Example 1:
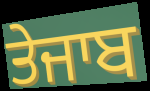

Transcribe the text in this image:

ਤੇਜਾਬ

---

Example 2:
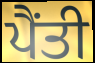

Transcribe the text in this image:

ਪੈਂਤੀ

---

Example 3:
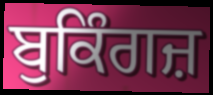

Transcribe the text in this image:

ਬੁਕਿੰਗਜ਼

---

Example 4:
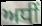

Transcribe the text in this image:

ਅਧੀਂ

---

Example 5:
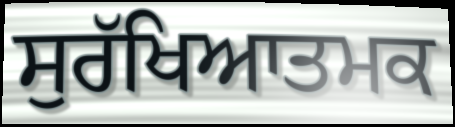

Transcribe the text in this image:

ਸੁਰੱਖਿਆਤਮਕ